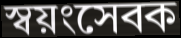
স্বয়ংসেবক